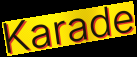
Karade